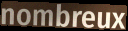
nombreux